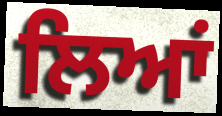
ਲਿਆਂ